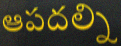
ఆపదల్ని